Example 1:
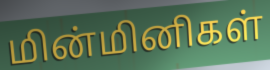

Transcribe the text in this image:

மின்மினிகள்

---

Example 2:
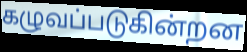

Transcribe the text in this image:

கழுவப்படுகின்றன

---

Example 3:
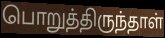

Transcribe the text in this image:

பொறுத்திருந்தாள்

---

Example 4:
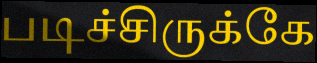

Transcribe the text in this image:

படிச்சிருக்கே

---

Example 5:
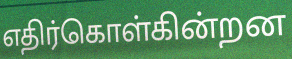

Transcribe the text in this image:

எதிர்கொள்கின்றன